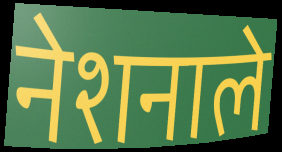
नेशनाले